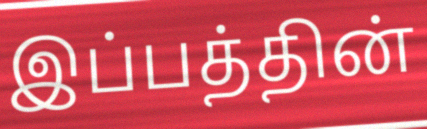
இப்பத்தின்